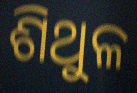
ଶିଥୁଳ